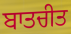
ਬਾਤਚੀਤ